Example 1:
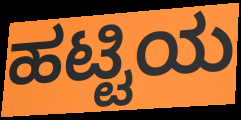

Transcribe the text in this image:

ಹಟ್ಟಿಯ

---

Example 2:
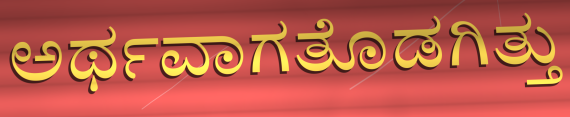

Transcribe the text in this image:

ಅರ್ಥವಾಗತೊಡಗಿತ್ತು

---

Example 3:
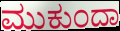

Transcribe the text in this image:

ಮುಕುಂದಾ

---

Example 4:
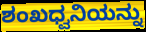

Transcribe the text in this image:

ಶಂಖಧ್ವನಿಯನ್ನು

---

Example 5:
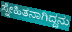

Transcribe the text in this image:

ಸ್ನೇಹಿತನಾಗಿದ್ದನು